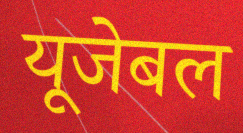
यूजेबल